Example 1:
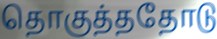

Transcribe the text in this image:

தொகுத்ததோடு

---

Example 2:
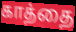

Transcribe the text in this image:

காத்தை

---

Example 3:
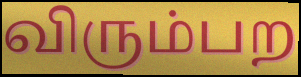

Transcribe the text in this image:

விரும்பற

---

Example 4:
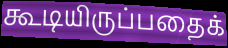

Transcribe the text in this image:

கூடியிருப்பதைக்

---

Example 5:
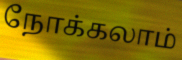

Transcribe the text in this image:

நோக்கலாம்